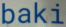
baki